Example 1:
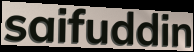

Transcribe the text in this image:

saifuddin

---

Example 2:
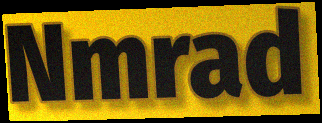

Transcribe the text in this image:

Nmrad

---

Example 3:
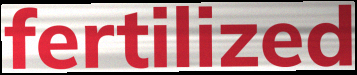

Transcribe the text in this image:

fertilized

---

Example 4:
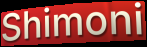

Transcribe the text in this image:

Shimoni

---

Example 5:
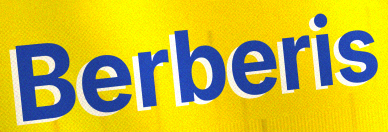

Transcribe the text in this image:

Berberis